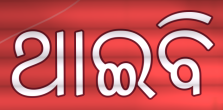
ଥାଇବି